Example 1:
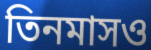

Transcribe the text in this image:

তিনমাসও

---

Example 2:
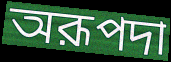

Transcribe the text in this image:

অরূপদা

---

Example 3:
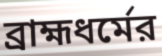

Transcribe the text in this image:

ব্রাহ্মধর্মের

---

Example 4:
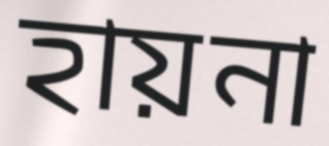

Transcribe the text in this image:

হায়না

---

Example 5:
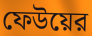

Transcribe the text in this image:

ফেউয়ের